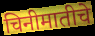
चिनीमातीचे